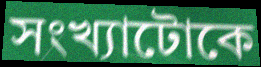
সংখ্যাটোকে